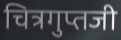
चित्रगुप्तजी